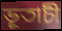
ভূতাচী